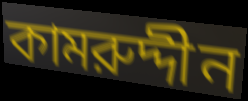
কামরুদ্দীন